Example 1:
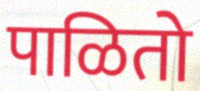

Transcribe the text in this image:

पाळितो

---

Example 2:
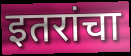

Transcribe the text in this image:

इतरांचा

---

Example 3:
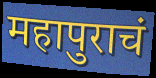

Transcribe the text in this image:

महापुराचं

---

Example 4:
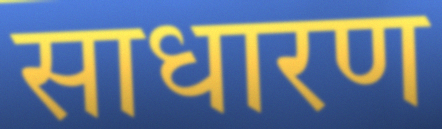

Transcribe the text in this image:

साधारण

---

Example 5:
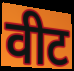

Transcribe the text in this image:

वीट